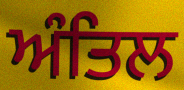
ਅੰਤਿਲ